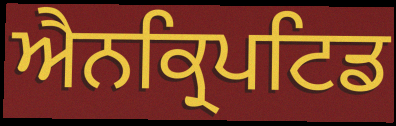
ਐਨਕ੍ਰਿਪਟਿਡ